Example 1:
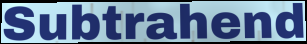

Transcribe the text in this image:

Subtrahend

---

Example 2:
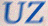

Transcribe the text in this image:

UZ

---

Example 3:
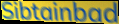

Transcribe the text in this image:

Sibtainbad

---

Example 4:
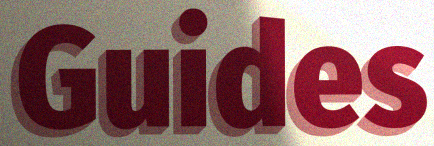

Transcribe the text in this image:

Guides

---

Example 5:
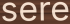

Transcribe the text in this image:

sere